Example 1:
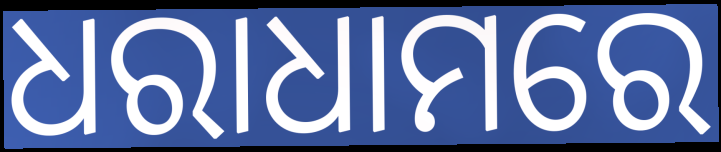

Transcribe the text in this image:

ଧରାଧାମରେ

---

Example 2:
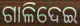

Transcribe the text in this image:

ଗାଳିଦେଇ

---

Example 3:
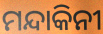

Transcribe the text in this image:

ମନ୍ଦାକିନୀ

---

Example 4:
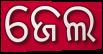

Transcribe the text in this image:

ଜେଲ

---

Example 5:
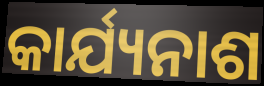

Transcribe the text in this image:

କାର୍ଯ୍ୟନାଶ